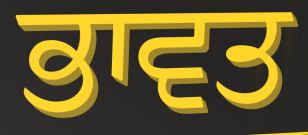
ਭਾਵਤ